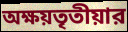
অক্ষয়তৃতীয়ার